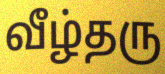
வீழ்தரு